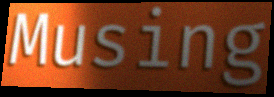
Musing